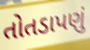
તોતડાપણું